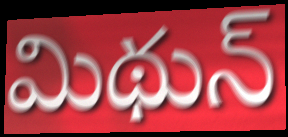
మిథున్